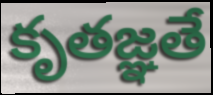
కృతజ్ఞతే